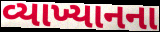
વ્યાખ્યાનના